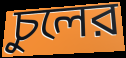
চুলের